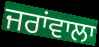
ਜਰਾਂਵਾਲਾ